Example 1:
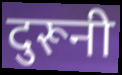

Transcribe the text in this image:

दुरूनी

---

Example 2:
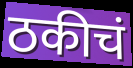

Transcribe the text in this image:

ठकीचं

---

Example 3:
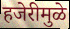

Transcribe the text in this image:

हजेरीमुळे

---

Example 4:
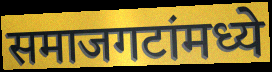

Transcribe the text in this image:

समाजगटांमध्ये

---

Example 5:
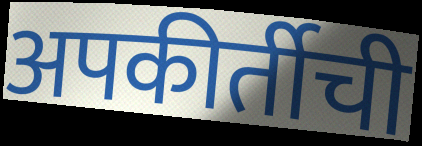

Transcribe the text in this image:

अपकीर्तीची